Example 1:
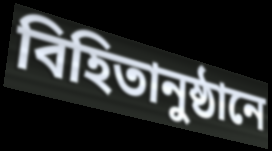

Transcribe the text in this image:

বিহিতানুষ্ঠানে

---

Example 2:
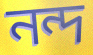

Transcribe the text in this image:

নন্দ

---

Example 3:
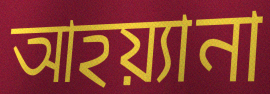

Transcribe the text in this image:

আহয়্যানা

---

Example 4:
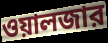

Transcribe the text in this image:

ওয়ালজার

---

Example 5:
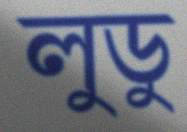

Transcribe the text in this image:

লুডু